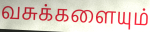
வசுக்களையும்